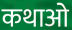
कथाओ